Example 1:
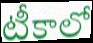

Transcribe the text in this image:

టీకాలో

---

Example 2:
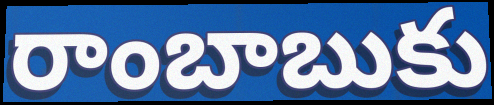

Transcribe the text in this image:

రాంబాబుకు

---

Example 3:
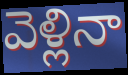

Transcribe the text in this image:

వెళ్లినా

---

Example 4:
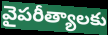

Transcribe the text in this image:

వైపరీత్యాలకు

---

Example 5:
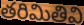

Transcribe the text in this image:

తరిమితివి